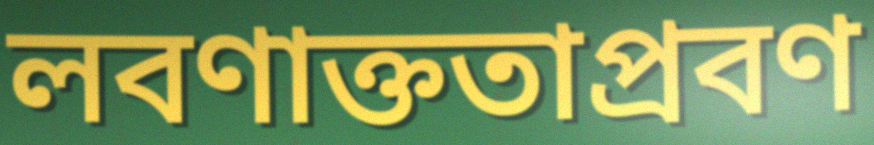
লবণাক্ততাপ্রবণ